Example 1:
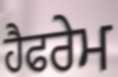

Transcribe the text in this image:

ਹੈਫਰੇਮ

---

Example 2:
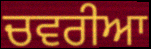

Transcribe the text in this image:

ਚਵਰੀਆ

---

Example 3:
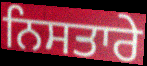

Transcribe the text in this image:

ਨਿਸਤਾਰੇ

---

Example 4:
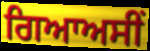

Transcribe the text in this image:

ਗਿਆਅਸੀਂ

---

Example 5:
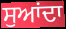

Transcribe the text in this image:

ਸੁਆਂਦਾ